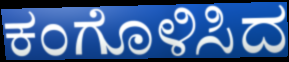
ಕಂಗೊಳಿಸಿದ